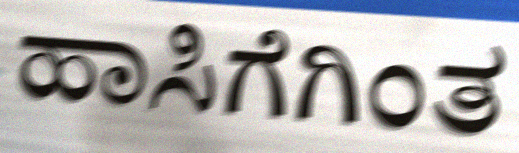
ಹಾಸಿಗೆಗಿಂತ